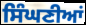
ਸਿੰਘਣੀਆਂ